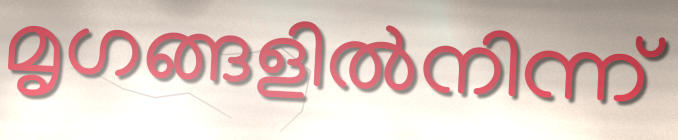
മൃഗങ്ങളിൽനിന്ന്